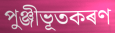
পুঞ্জীভূতকৰণ